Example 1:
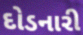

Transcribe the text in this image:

દોડનારી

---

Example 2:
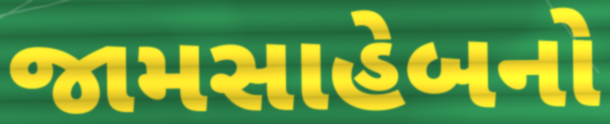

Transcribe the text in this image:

જામસાહેબનો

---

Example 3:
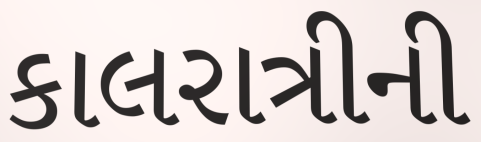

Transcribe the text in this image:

કાલરાત્રીની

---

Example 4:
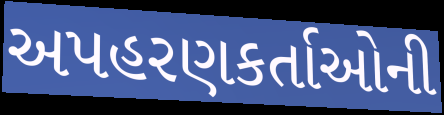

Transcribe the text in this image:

અપહરણકર્તાઓની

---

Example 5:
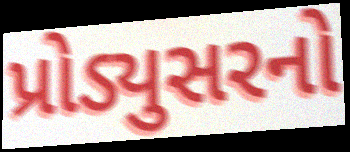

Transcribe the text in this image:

પ્રોડ્યુસરનો